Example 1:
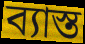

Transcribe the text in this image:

ব্যাস্ত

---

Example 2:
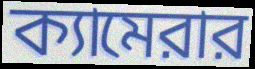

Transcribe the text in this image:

ক্যামেরার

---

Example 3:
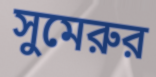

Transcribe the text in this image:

সুমেরুর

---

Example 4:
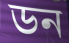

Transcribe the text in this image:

ডন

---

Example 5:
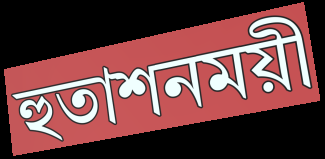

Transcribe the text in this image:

হুতাশনময়ী